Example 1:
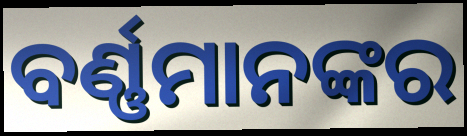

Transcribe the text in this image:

ବର୍ଣ୍ଣମାନଙ୍କର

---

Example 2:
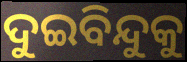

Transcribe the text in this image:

ଦୁଇବିନ୍ଦୁକୁ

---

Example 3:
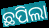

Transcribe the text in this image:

ଛପିଲା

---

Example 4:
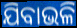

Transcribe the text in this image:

ଯିବାଭଳି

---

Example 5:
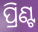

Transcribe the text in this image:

ପ୍ରିଣ୍ଟ